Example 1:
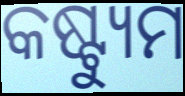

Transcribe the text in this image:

କଷ୍ଟ୍ୟୁମ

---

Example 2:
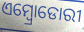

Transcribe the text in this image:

ଏମ୍ବ୍ରୋଡୋରୀ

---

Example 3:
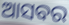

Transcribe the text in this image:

ଆସବର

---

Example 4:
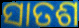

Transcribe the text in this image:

ସାତଶ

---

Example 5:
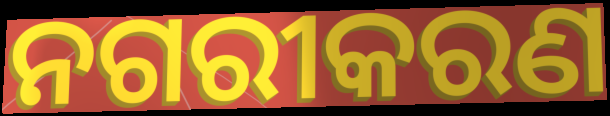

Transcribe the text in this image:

ନଗରୀକରଣ